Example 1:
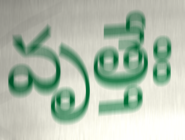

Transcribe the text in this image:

వృత్తేః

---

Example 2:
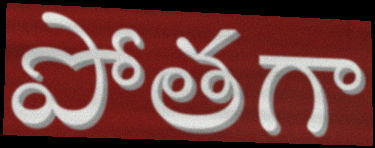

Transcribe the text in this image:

పోతగా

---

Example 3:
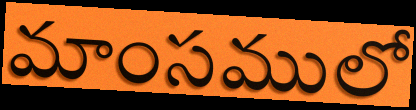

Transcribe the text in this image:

మాంసములో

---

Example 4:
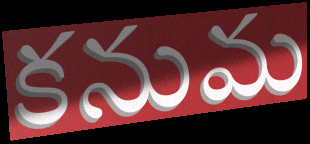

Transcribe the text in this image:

కనుమ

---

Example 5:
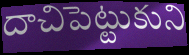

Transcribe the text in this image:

దాచిపెట్టుకుని